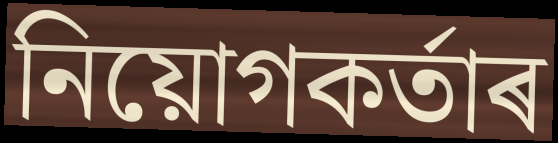
নিয়োগকৰ্তাৰ